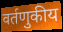
वर्तणुकीय